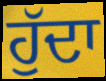
ਹੁੱਦਾ